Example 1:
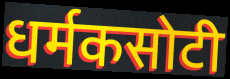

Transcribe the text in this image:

धर्मकसोटी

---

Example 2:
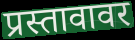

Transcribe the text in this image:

प्रस्तावावर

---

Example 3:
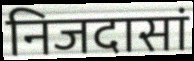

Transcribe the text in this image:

निजदासां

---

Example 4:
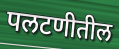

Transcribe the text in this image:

पलटणीतील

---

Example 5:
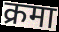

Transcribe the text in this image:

क्रमा